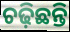
ଚଢ଼ିଛନ୍ତି